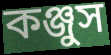
কঞ্জুস